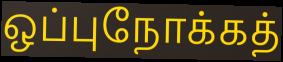
ஒப்புநோக்கத்